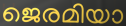
ജെരമിയാ